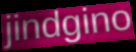
jindgino